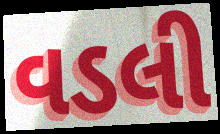
વડલી